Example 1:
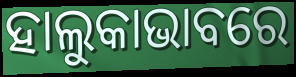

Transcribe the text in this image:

ହାଲୁକାଭାବରେ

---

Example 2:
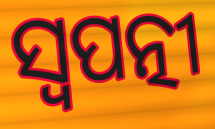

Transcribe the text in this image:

ସ୍ୱପତ୍ନୀ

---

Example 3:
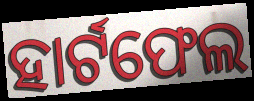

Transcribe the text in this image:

ହାର୍ଟଫେଲ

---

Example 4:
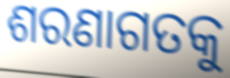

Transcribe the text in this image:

ଶରଣାଗତକୁ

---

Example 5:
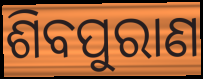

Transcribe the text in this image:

ଶିବପୁରାଣ